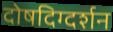
दोषदिग्दर्शन